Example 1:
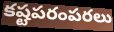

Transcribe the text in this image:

కష్టపరంపరలు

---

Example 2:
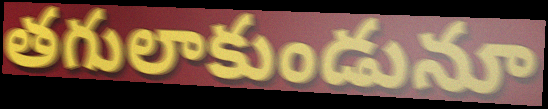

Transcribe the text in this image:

తగులాకుండునూ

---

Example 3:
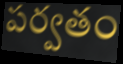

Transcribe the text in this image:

పర్వతం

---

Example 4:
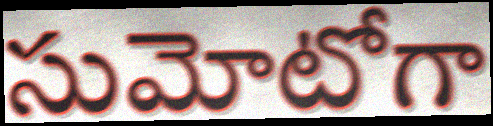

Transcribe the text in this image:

సుమోటోగా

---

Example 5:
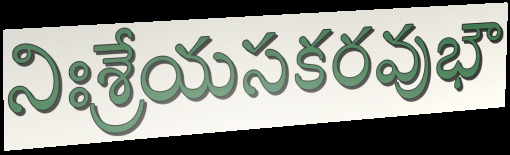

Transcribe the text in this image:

నిఃశ్రేయసకరవుభౌ